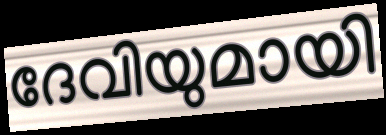
ദേവിയുമായി